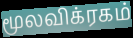
மூலவிக்ரகம்